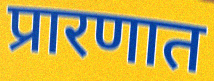
प्रारणात